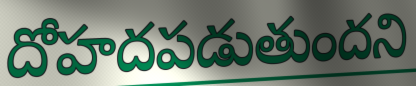
దోహదపడుతుందని